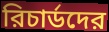
রিচার্ডদের